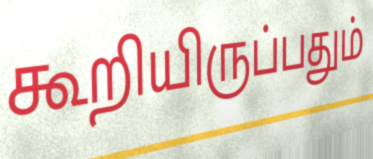
கூறியிருப்பதும்